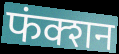
फंक्शन